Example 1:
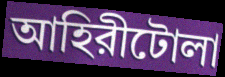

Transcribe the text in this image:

আহিরীটোলা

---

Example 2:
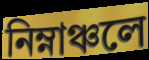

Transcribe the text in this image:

নিম্নাঞ্চলে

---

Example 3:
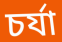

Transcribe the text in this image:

চর্যা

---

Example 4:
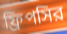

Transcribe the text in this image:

ফ্রিপসির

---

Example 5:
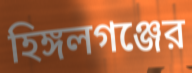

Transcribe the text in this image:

হিঙ্গলগঞ্জের